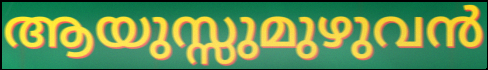
ആയുസ്സുമുഴുവൻ